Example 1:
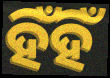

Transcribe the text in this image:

ହିଁହିଁ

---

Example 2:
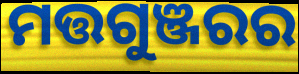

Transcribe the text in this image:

ମତ୍ତଗୁଞ୍ଜରର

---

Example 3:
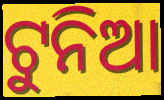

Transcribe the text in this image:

ଟୁନିଆ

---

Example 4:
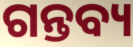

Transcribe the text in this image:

ଗନ୍ତବ୍ୟ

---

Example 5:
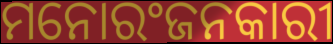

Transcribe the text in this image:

ମନୋରଂଜନକାରୀ